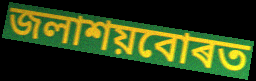
জলাশয়বোৰত